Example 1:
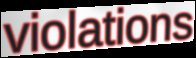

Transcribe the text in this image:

violations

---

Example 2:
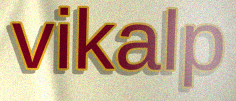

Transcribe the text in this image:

vikalp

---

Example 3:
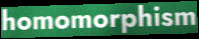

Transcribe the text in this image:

homomorphism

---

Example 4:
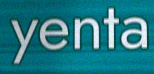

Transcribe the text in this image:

yenta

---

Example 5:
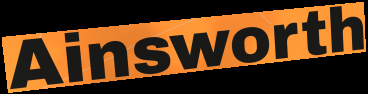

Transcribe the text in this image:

Ainsworth